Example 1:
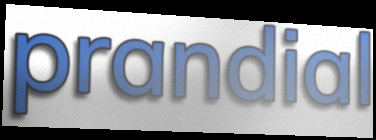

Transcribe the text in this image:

prandial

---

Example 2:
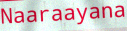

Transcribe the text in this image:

Naaraayana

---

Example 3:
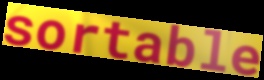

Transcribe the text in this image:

sortable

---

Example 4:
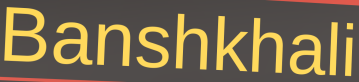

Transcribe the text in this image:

Banshkhali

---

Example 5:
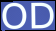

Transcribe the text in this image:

OD